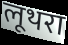
लूथरा